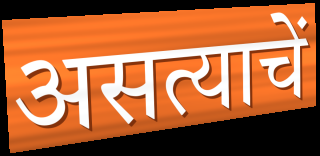
असत्याचें